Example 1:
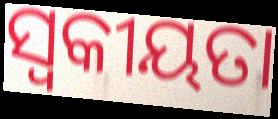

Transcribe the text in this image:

ସ୍ଵକୀୟତା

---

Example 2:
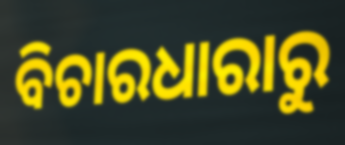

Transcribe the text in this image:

ବିଚାରଧାରାରୁ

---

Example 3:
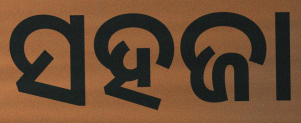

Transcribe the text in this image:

ସହଜା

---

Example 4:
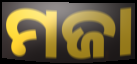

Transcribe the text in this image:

ମଜା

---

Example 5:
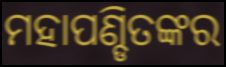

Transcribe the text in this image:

ମହାପଣ୍ଡିତଙ୍କର